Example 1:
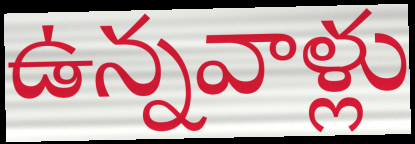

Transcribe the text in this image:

ఉన్నవాళ్లు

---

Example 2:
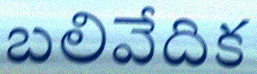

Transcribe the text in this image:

బలివేదిక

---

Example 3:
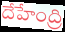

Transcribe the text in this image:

దేహేంద్రి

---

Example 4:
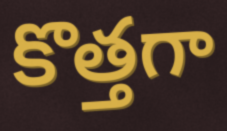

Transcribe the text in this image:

కొత్తగా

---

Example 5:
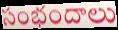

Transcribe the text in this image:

సంభందాలు